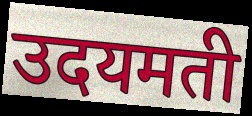
उदयमती